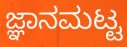
ಜ್ಞಾನಮಟ್ಟ